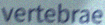
vertebrae